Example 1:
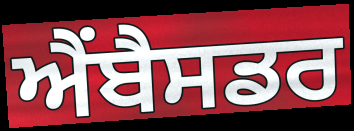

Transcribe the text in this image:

ਐਂਬੈਸਡਰ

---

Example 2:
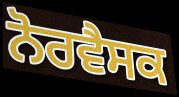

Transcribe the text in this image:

ਨੋਰਵੈਸਕ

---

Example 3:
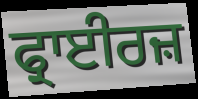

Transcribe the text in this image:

ਫ੍ਰਾਈਰਜ਼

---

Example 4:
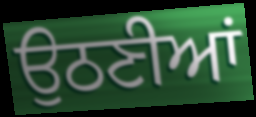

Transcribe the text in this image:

ਉਠਣੀਆਂ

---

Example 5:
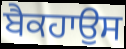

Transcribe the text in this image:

ਬੈਕਹਾਉਸ